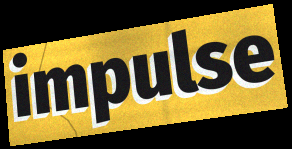
impulse